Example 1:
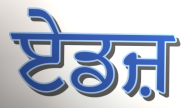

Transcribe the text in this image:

ਏਡਜ਼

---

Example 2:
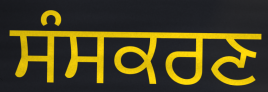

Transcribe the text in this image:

ਸੰਸਕਰਣ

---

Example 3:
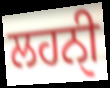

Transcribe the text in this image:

ਲਹਨੑੀ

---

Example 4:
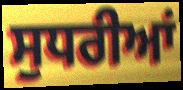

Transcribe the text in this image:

ਸੁਧਰੀਆਂ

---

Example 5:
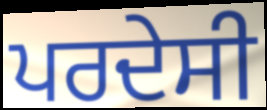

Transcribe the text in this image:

ਪਰਦੇਸੀ